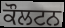
ਕੌਲਟਨ